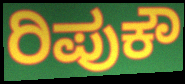
ರಿಪುಕೌ